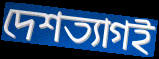
দেশত্যাগই